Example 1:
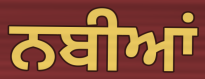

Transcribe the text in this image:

ਨਬੀਆਂ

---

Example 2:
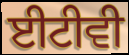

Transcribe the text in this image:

ਈਟੀਵੀ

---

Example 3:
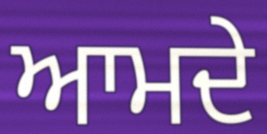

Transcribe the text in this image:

ਆਮਦੇ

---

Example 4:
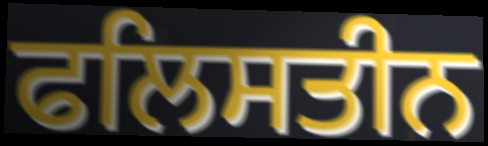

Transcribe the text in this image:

ਫਲਿਸਤੀਨ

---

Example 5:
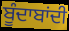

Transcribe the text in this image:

ਬੂੰਦਾਬਾਂਦੀ